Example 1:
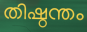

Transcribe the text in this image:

തിഷ്ഠന്തം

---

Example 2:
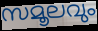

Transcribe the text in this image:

സമൂലവും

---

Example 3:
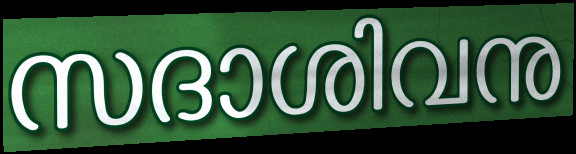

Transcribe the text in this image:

സദാശിവനു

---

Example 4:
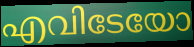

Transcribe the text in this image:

എവിടേയോ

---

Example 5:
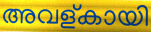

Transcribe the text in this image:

അവള്കായി